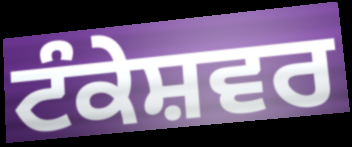
ਟੰਕੇਸ਼ਵਰ